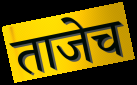
ताजेच